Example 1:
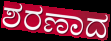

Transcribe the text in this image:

ಶರಣಾದ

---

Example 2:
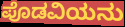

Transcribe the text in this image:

ಪೊಡವಿಯನು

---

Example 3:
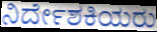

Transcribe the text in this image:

ನಿರ್ದೇಶಕಿಯರು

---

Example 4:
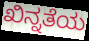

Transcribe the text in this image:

ಖಿನ್ನತೆಯ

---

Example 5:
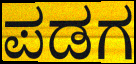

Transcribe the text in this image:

ಪಡಗ